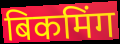
बिकमिंग